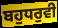
ਬਹੁਧਰੁਵੀ